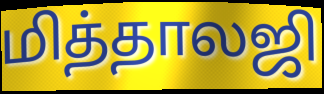
மித்தாலஜி